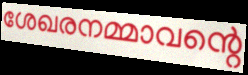
ശേഖരനമ്മാവന്റെ